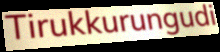
Tirukkurungudi